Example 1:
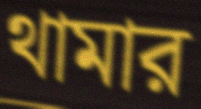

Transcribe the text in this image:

থামার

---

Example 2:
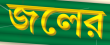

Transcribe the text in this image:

জলের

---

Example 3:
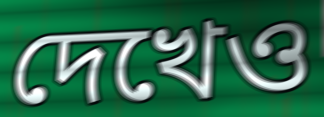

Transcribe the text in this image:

দেখেও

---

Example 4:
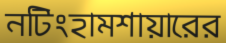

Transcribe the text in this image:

নটিংহামশায়ারের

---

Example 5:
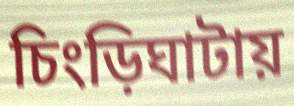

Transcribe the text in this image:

চিংড়িঘাটায়